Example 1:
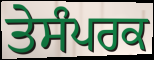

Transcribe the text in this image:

ਤੇਸੰਪਰਕ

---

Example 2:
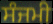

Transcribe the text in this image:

ਸੰਜਮੀ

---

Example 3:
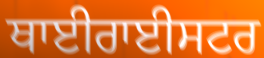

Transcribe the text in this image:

ਥਾਈਰਾਈਸਟਰ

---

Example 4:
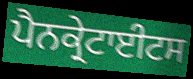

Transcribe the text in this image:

ਪੈਨਕ੍ਰੇਟਾਈਟਸ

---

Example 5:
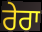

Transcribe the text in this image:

ਰੇਰਾ